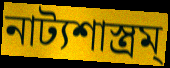
নাট্যশাস্ত্রম্